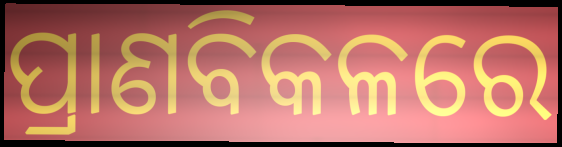
ପ୍ରାଣବିକଳରେ